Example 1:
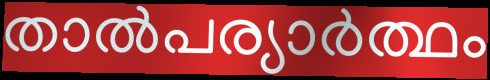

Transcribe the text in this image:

താൽപര്യാർത്ഥം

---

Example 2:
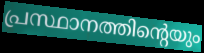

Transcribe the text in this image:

പ്രസ്ഥാനത്തിന്റെയും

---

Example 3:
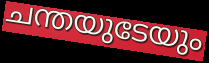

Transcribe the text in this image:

ചന്തയുടേയും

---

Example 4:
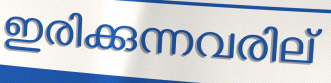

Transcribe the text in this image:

ഇരിക്കുന്നവരില്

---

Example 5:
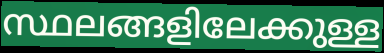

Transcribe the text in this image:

സ്ഥലങ്ങളിലേക്കുള്ള